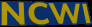
NCWI